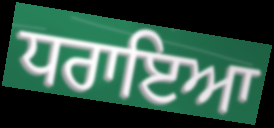
ਧਰਾਇਆ